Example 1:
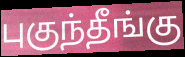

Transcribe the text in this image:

புகுந்தீங்கு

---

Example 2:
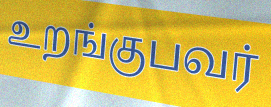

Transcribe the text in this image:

உறங்குபவர்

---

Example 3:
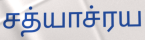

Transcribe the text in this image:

சத்யாச்ரய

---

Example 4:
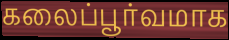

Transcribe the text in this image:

கலைப்பூர்வமாக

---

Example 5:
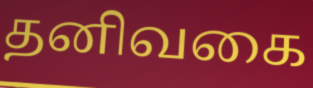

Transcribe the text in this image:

தனிவகை